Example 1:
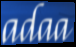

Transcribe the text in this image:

adaa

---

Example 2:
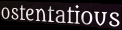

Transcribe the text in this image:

ostentatious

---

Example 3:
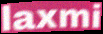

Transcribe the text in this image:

laxmi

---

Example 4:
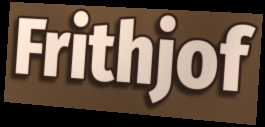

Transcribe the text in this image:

Frithjof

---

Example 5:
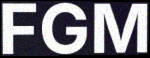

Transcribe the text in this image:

FGM